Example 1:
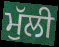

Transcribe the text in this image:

ਮੁੱਲੀ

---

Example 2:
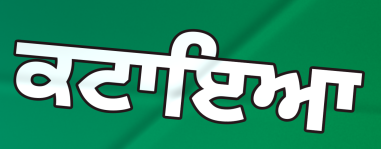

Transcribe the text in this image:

ਕਟਾਇਆ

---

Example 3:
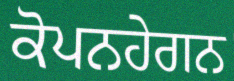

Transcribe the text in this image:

ਕੋਪਨਹੇਗਨ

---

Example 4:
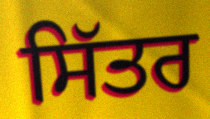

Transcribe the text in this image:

ਸਿੱਤਰ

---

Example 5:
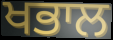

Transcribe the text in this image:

ਖਭਾਲ